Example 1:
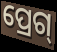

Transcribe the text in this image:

ପ୍ରେଗ୍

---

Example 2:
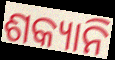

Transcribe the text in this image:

ଶକ୍ୟାନି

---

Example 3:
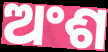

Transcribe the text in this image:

ଅଂଶ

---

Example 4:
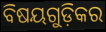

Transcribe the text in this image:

ବିଷୟଗୁଡ଼ିକର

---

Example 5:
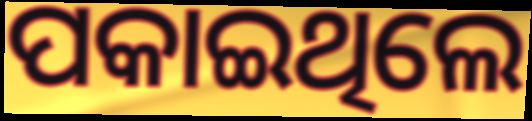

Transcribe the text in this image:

ପକାଇଥିଲେ